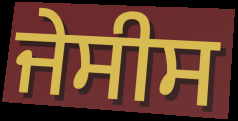
ਜੇਸੀਸ